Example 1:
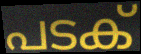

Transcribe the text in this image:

പടക്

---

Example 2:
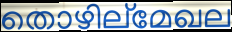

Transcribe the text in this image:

തൊഴില്മേഖല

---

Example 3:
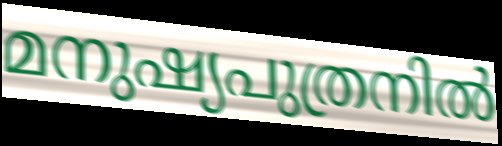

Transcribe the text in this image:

മനുഷ്യപുത്രനിൽ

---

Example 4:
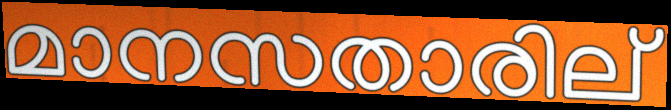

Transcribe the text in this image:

മാനസതാരില്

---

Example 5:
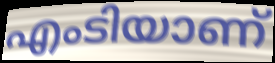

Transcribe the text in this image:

എംടിയാണ്